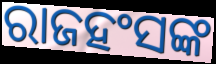
ରାଜହଂସଙ୍କ